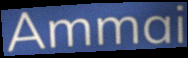
Ammai